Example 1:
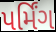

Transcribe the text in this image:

પર્મિંગ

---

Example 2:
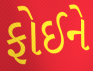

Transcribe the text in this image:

ફોઈને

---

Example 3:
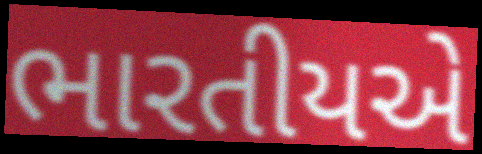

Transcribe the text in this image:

ભારતીયએ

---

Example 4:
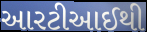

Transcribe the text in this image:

આરટીઆઈથી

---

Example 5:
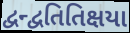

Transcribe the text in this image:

દ્વન્દ્વતિતિક્ષયા